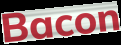
Bacon